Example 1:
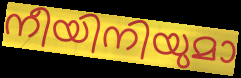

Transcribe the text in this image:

നീയിനിയുമാ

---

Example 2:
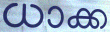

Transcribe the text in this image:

ധാക്ക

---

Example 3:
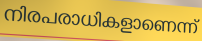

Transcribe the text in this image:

നിരപരാധികളാണെന്ന്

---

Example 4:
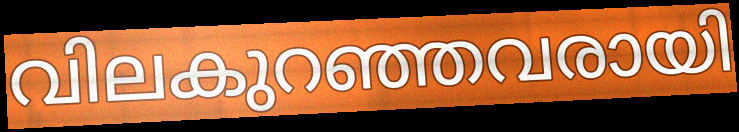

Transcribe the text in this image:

വിലകുറഞ്ഞവരായി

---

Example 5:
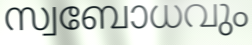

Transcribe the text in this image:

സ്വബോധവും